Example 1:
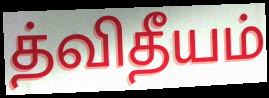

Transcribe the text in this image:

த்விதீயம்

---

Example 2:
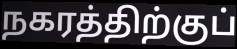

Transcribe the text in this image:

நகரத்திற்குப்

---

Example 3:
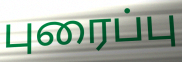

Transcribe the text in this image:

புரைப்பு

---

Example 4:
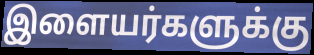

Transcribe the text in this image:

இளையர்களுக்கு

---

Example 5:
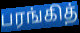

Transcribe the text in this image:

பரங்கித்